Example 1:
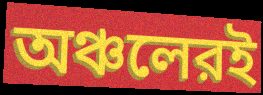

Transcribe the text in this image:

অঞ্চলেরই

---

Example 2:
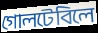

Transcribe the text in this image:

গোলটেবিলে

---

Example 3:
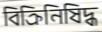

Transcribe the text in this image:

বিক্রিনিষিদ্ধ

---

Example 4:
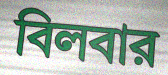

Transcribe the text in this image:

বিলবার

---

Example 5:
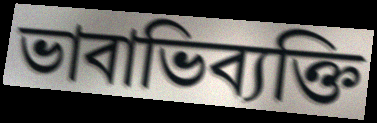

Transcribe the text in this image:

ভাবাভিব্যক্তি